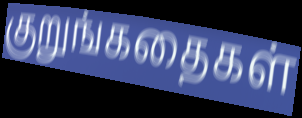
குறுங்கதைகள்